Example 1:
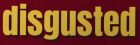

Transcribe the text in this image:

disgusted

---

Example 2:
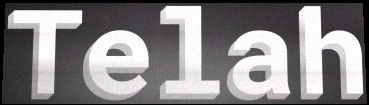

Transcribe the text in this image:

Telah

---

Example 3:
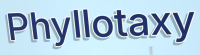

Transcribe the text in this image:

Phyllotaxy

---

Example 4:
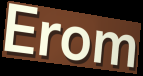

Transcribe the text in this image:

Erom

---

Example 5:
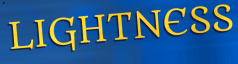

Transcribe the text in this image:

LIGHTNESS